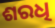
ଶରଧି